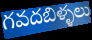
గవదబిళ్ళలు